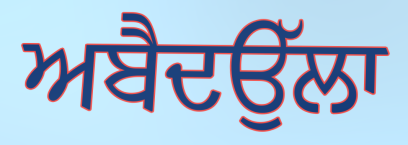
ਅਬੈਦਉੱਲਾ